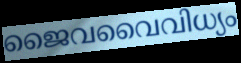
ജൈവവൈവിധ്യം